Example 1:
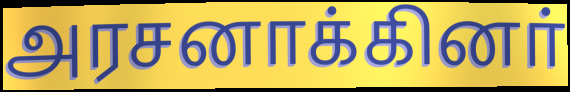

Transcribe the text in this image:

அரசனாக்கினர்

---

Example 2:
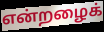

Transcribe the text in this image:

என்றழைக்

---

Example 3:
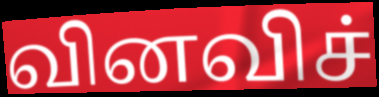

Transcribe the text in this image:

வினவிச்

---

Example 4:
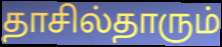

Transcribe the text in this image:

தாசில்தாரும்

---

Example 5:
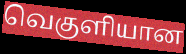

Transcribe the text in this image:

வெகுளியான